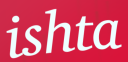
ishta